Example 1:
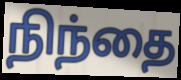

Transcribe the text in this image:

நிந்தை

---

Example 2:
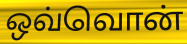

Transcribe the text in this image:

ஒவ்வொன்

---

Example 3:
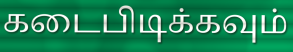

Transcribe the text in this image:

கடைபிடிக்கவும்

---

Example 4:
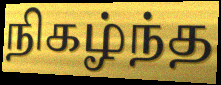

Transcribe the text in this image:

நிகழ்ந்த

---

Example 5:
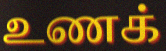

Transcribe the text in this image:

உணக்